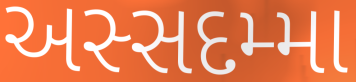
અસ્સદમ્મા